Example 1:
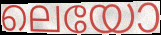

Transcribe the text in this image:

ലെയോ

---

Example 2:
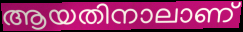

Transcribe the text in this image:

ആയതിനാലാണ്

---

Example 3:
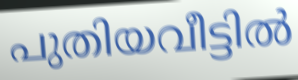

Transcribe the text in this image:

പുതിയവീട്ടിൽ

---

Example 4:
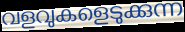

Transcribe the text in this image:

വളവുകളെടുക്കുന്ന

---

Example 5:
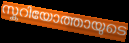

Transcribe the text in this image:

സ്കറിയോത്തായുടെ